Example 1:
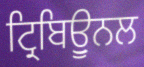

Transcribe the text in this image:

ਟ੍ਰਿਬਿਊੁਨਲ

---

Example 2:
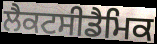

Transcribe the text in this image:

ਲੈਕਟਸੀਡੈਮਿਕ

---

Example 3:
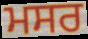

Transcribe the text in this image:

ਮਸਰ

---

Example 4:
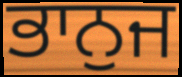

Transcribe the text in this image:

ਭਾਨੁਜ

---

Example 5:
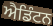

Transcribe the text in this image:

ਐਡਿੰਟਨ